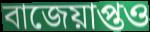
বাজেয়াপ্তও